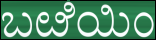
ಬೞಿಯಿಂ